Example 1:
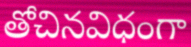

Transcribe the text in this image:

తోచినవిధంగా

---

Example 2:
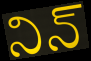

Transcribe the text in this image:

నిన్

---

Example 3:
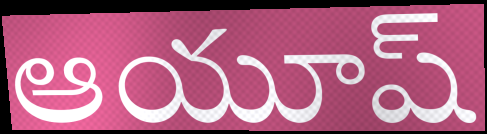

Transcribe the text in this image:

ఆయూష్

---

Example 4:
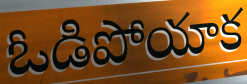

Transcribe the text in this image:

ఓడిపోయాక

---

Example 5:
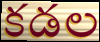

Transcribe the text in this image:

కడల